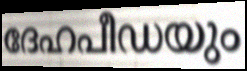
ദേഹപീഡയും